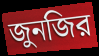
জুনজির